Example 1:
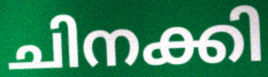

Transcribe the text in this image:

ചിനക്കി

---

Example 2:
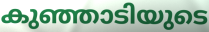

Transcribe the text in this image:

കുഞ്ഞാടിയുടെ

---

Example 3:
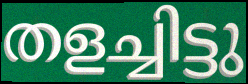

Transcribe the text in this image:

തളച്ചിട്ടു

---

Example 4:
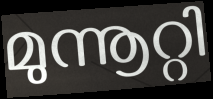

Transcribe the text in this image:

മുന്നൂറ്റി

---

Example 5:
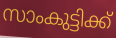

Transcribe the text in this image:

സാംകുട്ടിക്ക്